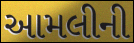
આમલીની